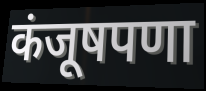
कंजूषपणा